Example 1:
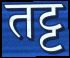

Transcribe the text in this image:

तट्ट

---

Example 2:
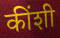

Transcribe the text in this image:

कींशी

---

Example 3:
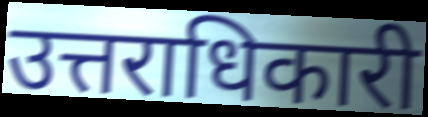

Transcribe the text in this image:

उत्तराधिकारी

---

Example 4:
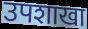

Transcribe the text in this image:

उपशाखा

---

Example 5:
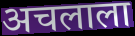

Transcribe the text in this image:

अचलाला